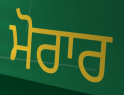
ਮੋਰਾਰ